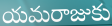
యమరాజుకు